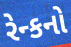
રેન્કનો